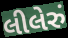
લીલેરું